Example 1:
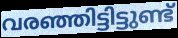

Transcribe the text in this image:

വരഞ്ഞിട്ടിട്ടുണ്ട്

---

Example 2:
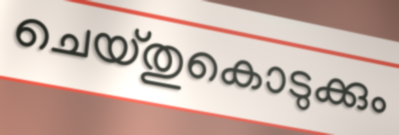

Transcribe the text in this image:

ചെയ്തുകൊടുക്കും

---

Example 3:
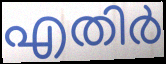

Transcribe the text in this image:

എതിർ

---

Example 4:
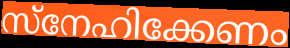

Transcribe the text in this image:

സ്നേഹിക്കേണം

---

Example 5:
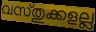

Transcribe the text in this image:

വസ്തുക്കളല്ല